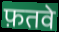
फ़तवे